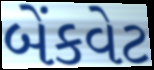
બેંકવેટ